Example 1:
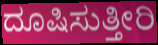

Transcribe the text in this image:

ದೂಷಿಸುತ್ತೀರಿ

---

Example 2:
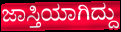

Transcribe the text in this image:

ಜಾಸ್ತಿಯಾಗಿದ್ದು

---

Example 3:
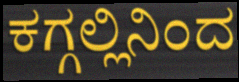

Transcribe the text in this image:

ಕಗ್ಗಲ್ಲಿನಿಂದ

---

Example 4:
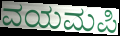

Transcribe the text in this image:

ವಯಮಪಿ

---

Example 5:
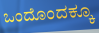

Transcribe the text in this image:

ಒಂದೊಂದಕ್ಕೂ